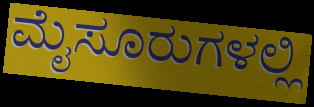
ಮೈಸೂರುಗಳಲ್ಲಿ